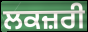
ਲਕਜ਼ਰੀ